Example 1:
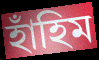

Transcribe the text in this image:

হাঁহিম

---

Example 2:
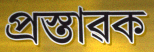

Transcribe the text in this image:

প্ৰস্তাৱক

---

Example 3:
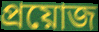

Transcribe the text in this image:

প্ৰয়োজ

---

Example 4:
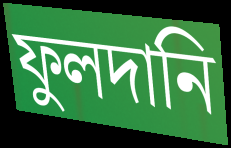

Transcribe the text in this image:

ফুলদানি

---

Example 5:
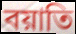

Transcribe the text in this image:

বয়াতি